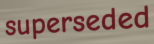
superseded